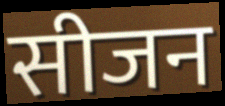
सीजन